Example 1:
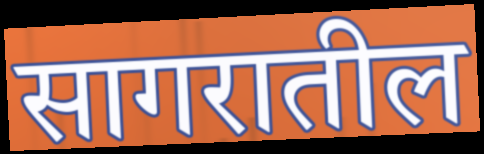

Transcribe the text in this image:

सागरातील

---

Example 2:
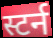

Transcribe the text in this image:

स्टर्न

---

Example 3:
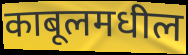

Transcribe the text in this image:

काबूलमधील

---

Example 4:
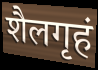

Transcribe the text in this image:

शैलगृहं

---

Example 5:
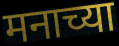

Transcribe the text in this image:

मनाच्‍या